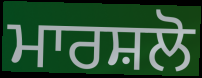
ਮਾਰਸ਼ਲੋ